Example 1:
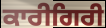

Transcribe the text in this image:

ਕਾਰੀਗਿਰੀ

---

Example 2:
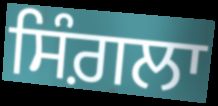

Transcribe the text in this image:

ਸਿੰਗ਼ਲਾ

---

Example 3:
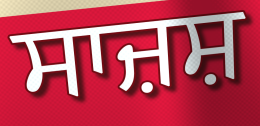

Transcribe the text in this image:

ਸਾਜ਼ਸ਼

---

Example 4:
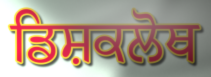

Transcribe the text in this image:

ਡਿਸ਼ਕਲੋਥ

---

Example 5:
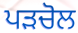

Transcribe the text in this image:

ਪੜਚੋਲ